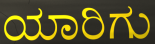
ಯಾರಿಗು